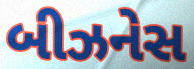
બીઝનેસ